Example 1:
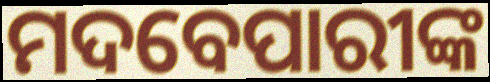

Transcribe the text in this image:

ମଦବେପାରୀଙ୍କ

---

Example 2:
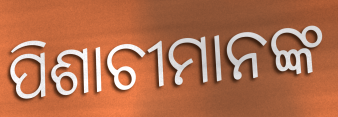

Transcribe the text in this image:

ପିଶାଚୀମାନଙ୍କ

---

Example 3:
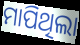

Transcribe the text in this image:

ମାପିଥିଲା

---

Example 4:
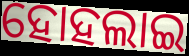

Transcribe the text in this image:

ହୋହଲାଇ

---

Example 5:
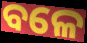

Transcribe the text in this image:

ବଳେ